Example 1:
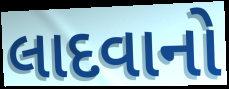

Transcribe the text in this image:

લાદવાનો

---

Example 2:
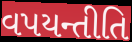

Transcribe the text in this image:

વપયન્તીતિ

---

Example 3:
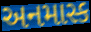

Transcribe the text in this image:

અનમાસ્ક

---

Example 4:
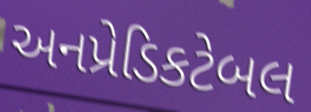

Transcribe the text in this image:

અનપ્રેડિકટેબલ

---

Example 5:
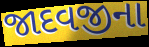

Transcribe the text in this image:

જાદવજીના